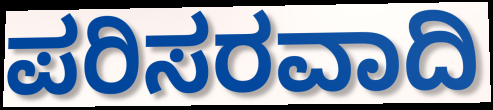
ಪರಿಸರವಾದಿ